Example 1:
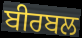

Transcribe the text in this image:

ਬੀਰਬਲ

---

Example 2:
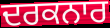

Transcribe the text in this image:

ਦਰਕਨਾਰ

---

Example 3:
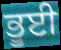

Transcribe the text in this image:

ਭੂਈ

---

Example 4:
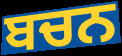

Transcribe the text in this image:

ਬਚਨ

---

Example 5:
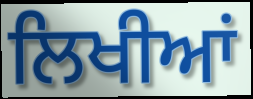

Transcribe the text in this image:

ਲਿਖੀਆਂ